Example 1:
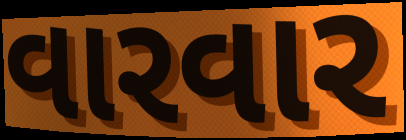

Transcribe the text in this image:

વારવાર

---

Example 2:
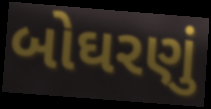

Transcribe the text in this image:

બોઘરણું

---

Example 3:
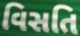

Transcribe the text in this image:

વિસતિ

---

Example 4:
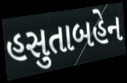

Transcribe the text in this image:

હસુતાબહેન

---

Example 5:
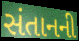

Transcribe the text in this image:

સંતાનની